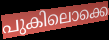
പുകിലൊക്കെ